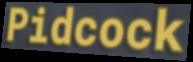
Pidcock